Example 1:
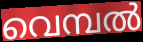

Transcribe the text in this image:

വെമ്പൽ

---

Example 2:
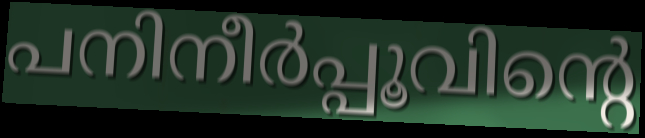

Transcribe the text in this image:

പനിനീർപ്പൂവിന്റെ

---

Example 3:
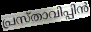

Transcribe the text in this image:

പ്രസ്താവിപ്പിൻ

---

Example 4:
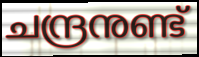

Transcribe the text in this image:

ചന്ദ്രനുണ്ട്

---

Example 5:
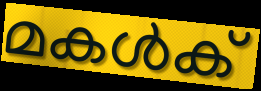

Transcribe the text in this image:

മകൾക്